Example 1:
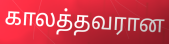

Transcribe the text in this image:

காலத்தவரான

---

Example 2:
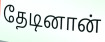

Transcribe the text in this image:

தேடினான்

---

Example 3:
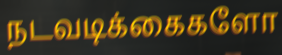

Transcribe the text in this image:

நடவடிக்கைகளோ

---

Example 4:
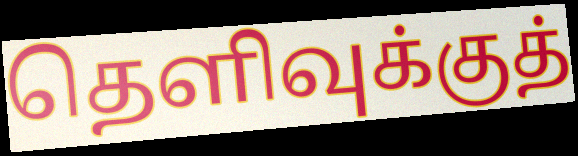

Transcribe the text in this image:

தெளிவுக்குத்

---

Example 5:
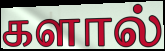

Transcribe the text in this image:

களால்